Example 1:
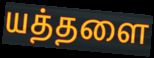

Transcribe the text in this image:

யத்தளை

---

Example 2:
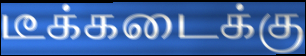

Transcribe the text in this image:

டீக்கடைக்கு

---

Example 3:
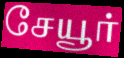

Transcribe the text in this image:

சேயூர்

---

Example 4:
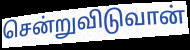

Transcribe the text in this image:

சென்றுவிடுவான்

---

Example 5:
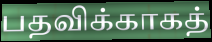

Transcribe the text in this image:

பதவிக்காகத்